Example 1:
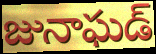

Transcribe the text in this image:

జునాఘడ్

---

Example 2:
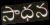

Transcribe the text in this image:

సాధన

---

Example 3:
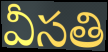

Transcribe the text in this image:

వీసతి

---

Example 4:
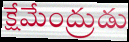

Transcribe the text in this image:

క్షేమేంద్రుడు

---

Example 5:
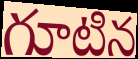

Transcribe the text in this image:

గూటిన